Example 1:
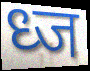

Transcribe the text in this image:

ध्ज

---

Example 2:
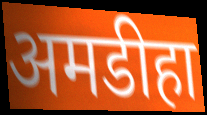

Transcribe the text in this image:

अमडीहा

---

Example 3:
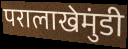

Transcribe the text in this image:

परालाखेमुंडी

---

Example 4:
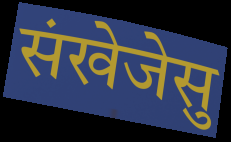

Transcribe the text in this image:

संखेजेसु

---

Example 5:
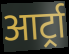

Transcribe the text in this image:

आर्ट्रा